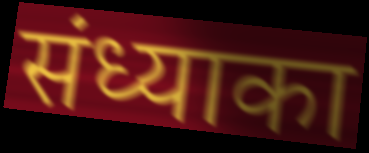
संध्याका